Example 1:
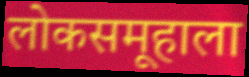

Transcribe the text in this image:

लोकसमूहाला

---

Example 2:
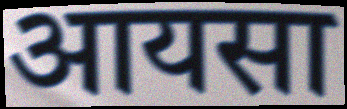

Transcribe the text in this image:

आयसा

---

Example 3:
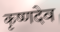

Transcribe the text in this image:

कृष्णदेव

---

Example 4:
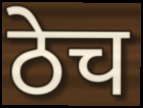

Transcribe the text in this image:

ठेच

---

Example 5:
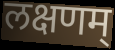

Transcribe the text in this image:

लक्षणम्